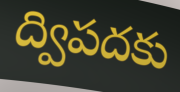
ద్విపదకు